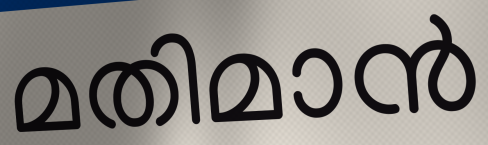
മതിമാൻ